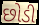
છોડી